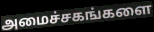
அமைச்சகங்களை